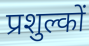
प्रशुल्कों